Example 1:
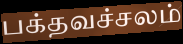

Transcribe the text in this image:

பக்தவச்சலம்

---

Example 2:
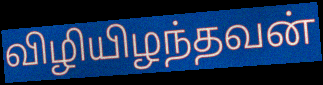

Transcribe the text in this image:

விழியிழந்தவன்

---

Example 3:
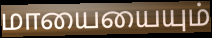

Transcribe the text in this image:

மாயையையும்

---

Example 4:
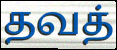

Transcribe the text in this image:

தவத்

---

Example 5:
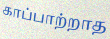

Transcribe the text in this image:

காப்பாற்றாத